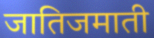
जातिजमाती